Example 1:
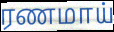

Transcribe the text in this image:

ரணமாய்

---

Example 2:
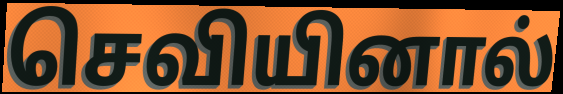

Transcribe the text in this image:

செவியினால்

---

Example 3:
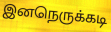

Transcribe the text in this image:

இனநெருக்கடி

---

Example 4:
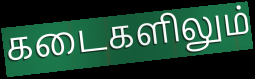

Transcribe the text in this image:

கடைகளிலும்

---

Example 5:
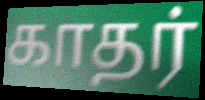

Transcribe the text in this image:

காதர்